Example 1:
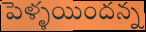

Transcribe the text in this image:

పెళ్ళయిందన్న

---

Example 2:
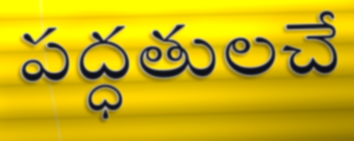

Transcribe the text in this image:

పద్ధతులచే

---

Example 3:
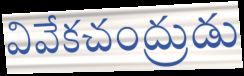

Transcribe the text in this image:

వివేకచంద్రుడు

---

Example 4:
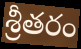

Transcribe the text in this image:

శ్రీతరం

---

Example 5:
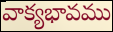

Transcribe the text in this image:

వాక్యభావము